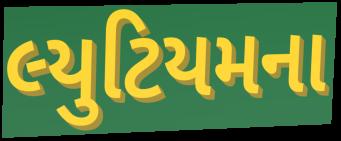
લ્યુટિયમના